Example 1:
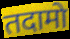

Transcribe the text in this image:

तदामो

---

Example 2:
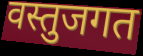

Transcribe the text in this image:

वस्तुजगत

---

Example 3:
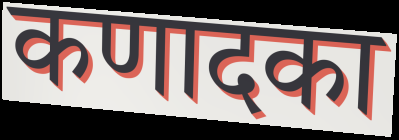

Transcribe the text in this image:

कणादका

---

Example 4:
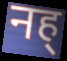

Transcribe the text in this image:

नह्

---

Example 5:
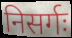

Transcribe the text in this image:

निसर्गः